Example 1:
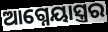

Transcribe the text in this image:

ଆଗ୍ନେୟାସ୍ତ୍ରର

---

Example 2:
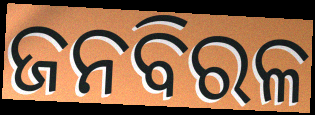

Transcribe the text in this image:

ଜନବିରଳ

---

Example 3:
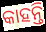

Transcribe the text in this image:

କାହନ୍ତି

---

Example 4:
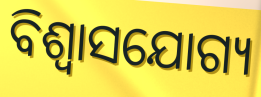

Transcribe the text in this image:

ବିଶ୍ବାସଯୋଗ୍ୟ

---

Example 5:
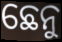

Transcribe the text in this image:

ଛେନୁ